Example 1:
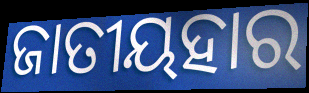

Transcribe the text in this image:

ଜାତୀୟହାର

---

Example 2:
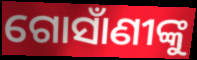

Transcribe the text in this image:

ଗୋସାଁଣୀଙ୍କୁ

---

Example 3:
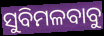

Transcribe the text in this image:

ସୁବିମଳବାବୁ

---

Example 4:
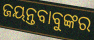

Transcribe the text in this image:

ଜୟନ୍ତବାବୁଙ୍କର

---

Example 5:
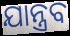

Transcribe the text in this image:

ଯାନ୍ତ୍ରବ